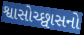
શ્વાસોચ્છ્વાસનો